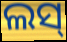
ଲସ୍